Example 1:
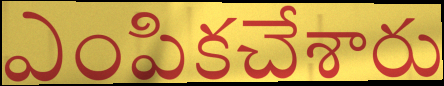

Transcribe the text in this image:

ఎంపికచేశారు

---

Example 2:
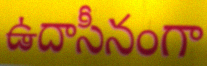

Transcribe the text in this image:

ఉదాసీనంగా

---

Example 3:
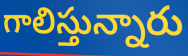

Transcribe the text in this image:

గాలిస్తున్నారు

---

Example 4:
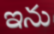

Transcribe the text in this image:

ఇను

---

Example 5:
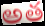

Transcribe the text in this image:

అత